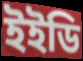
ইইডি